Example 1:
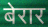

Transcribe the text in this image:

बेरार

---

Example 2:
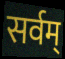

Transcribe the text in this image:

सर्वम्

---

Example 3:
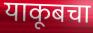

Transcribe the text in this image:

याकूबचा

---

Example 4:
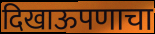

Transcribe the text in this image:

दिखाऊपणाचा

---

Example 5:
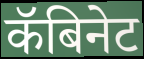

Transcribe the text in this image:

कॅबिनेट